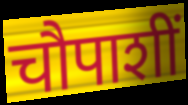
चौपाशीं